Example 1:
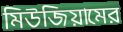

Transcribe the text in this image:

মিউজিয়ামের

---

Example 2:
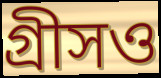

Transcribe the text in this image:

গ্রীসও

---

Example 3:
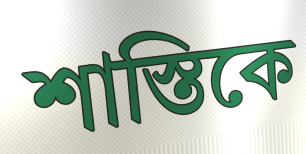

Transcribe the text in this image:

শাস্তিকে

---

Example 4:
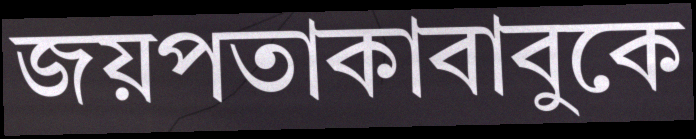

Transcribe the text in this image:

জয়পতাকাবাবুকে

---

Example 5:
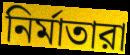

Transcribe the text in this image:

নির্মাতারা